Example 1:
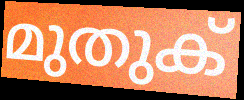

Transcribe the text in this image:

മുതുക്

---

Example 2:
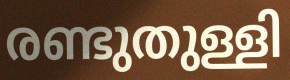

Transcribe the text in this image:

രണ്ടുതുള്ളി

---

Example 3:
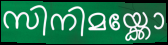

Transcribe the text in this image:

സിനിമയ്ക്കോ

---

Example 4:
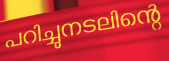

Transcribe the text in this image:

പറിച്ചുനടലിന്റെ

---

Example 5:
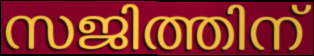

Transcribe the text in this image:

സജിത്തിന്